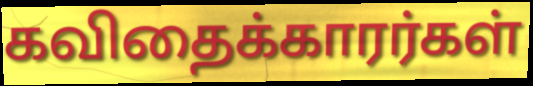
கவிதைக்காரர்கள்